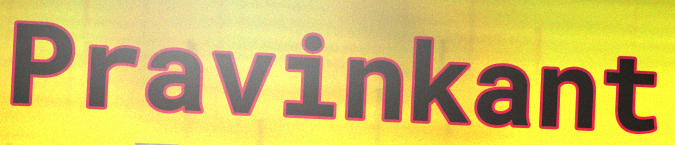
Pravinkant